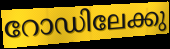
റോഡിലേക്കു